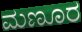
ಮಣೂರ